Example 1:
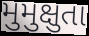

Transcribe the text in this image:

મુમુક્ષુતા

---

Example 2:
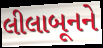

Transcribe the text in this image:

લીલાબૂનને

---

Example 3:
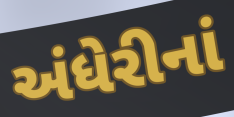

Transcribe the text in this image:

અંધેરીનાં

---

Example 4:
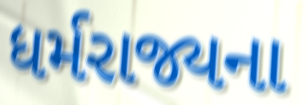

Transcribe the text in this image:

ધર્મરાજ્યના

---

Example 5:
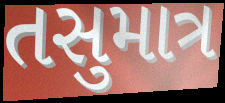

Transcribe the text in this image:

તસુમાત્ર